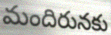
మందిరునకు